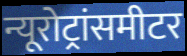
न्यूरोट्रांसमीटर